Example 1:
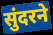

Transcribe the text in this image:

सुंदरने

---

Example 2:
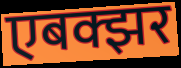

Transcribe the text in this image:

एबक्झर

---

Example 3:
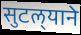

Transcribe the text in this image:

सुटल्याने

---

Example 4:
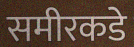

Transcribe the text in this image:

समीरकडे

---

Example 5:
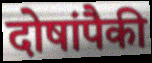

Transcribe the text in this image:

दोषांपैकी